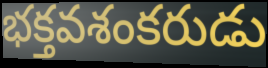
భక్తవశంకరుడు